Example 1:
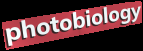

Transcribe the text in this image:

photobiology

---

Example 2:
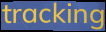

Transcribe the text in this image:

tracking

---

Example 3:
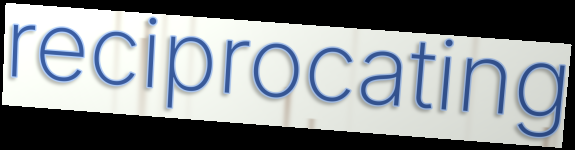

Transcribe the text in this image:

reciprocating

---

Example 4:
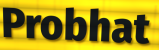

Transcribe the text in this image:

Probhat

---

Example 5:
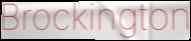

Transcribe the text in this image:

Brockington